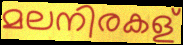
മലനിരകള്